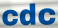
cdc